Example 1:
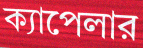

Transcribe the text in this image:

ক্যাপেলার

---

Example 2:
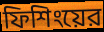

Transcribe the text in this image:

ফিশিংয়ের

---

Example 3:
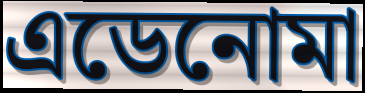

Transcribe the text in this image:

এডেনোমা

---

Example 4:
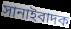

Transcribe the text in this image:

সানাইবাদক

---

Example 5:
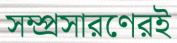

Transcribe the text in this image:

সম্প্রসারণেরই